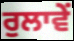
ਰੁਲਾਵੇਂ